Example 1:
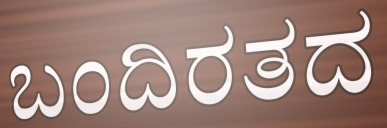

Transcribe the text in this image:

ಬಂದಿರತದ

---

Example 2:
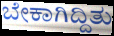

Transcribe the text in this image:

ಬೇಕಾಗಿದ್ದಿತು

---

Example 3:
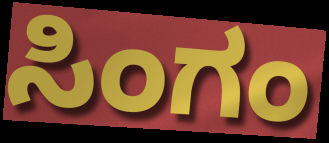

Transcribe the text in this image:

ಸಿಂಗಂ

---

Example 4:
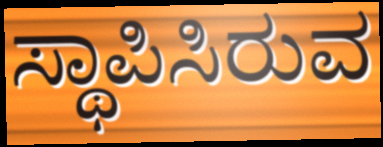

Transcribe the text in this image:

ಸ್ಥಾಪಿಸಿರುವ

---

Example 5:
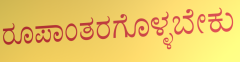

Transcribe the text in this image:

ರೂಪಾಂತರಗೊಳ್ಳಬೇಕು